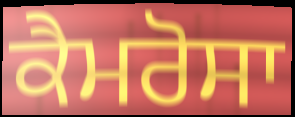
ਕੈਮਰੋਸਾ